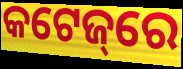
କଟେଜ୍‌ରେ